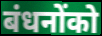
बंधनोंको